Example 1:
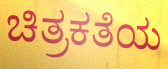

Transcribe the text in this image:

ಚಿತ್ರಕತೆಯ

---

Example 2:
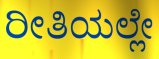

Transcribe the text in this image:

ರೀತಿಯಲ್ಲೇ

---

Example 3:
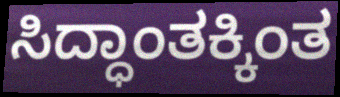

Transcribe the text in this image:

ಸಿದ್ಧಾಂತಕ್ಕಿಂತ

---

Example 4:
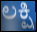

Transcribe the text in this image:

ಲಕ್ಷಿ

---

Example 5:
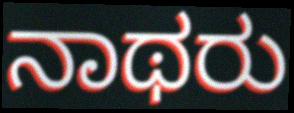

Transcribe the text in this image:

ನಾಥರು